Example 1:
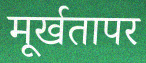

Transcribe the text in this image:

मूर्खतापर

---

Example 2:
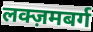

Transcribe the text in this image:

लक्ज़मबर्ग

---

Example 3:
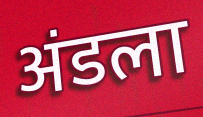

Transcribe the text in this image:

अंडला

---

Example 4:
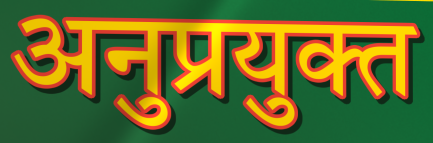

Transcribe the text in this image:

अनुप्रयुक्त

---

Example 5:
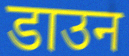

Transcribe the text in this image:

डाउन